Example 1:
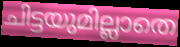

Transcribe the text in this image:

ചിട്ടയുമില്ലാതെ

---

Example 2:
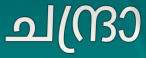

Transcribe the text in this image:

ചന്ദ്രാ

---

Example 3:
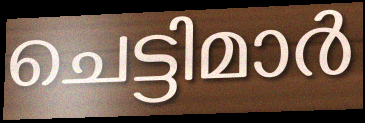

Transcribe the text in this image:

ചെട്ടിമാർ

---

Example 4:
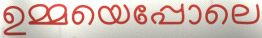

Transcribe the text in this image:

ഉമ്മയെപ്പോലെ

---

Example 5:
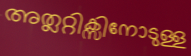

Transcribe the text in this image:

അത്ലറ്റിക്സിനോടുള്ള